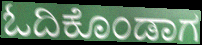
ಓದಿಕೊಂಡಾಗ